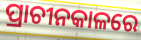
ପ୍ରାଚୀନକାଳରେ